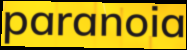
paranoia